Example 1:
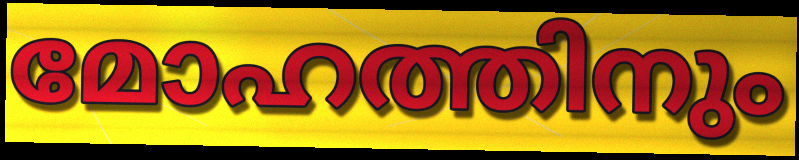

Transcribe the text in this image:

മോഹത്തിനും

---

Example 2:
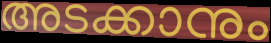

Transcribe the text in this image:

അടക്കാനും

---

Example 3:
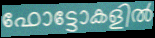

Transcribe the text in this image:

ഫോട്ടോകളിൽ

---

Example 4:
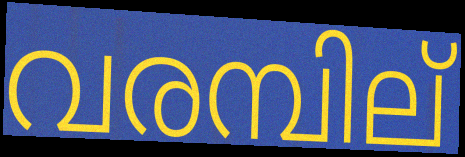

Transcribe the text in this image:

വരമ്പില്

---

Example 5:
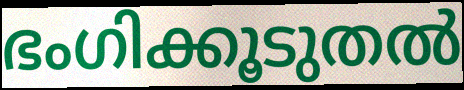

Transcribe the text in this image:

ഭംഗിക്കൂടുതൽ